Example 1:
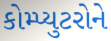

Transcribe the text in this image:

કોમ્પ્યુટરોને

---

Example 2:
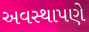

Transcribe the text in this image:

અવસ્થાપણે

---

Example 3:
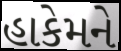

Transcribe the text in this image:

હાકેમને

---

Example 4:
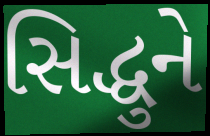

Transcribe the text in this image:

સિદ્ધુને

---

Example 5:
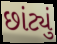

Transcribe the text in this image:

છાંટ્યું